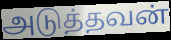
அடுத்தவன்